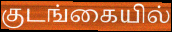
குடங்கையில்